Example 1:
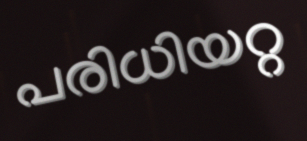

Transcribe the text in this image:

പരിധിയറ്റ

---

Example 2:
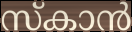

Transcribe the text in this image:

സ്കാൻ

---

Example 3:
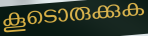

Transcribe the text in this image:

കൂടൊരുക്കുക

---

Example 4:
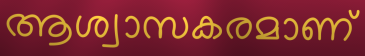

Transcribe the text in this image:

ആശ്വാസകരമാണ്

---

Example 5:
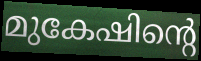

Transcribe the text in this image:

മുകേഷിന്റെ